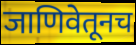
जाणिवेतूनच